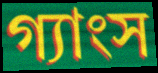
গ্যাংস